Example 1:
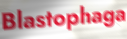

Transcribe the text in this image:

Blastophaga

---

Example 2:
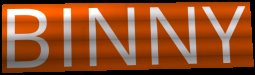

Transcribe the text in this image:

BINNY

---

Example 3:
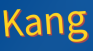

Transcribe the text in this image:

Kang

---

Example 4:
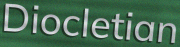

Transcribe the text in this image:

Diocletian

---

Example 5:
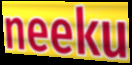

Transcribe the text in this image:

neeku